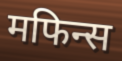
मफिन्स